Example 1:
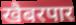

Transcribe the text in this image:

खैबरपार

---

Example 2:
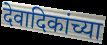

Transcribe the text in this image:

देवादिकांच्या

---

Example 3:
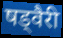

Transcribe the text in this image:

षड्वैरी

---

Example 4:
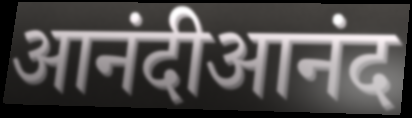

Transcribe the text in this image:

आनंदीआनंद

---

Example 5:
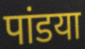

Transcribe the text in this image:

पांडया